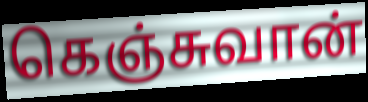
கெஞ்சுவான்